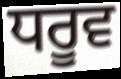
ਧਰੂਵ